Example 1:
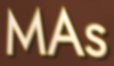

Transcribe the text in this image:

MAs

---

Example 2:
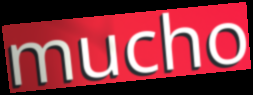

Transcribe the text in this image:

mucho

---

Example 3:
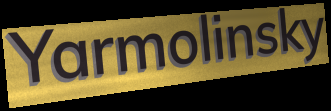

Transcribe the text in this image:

Yarmolinsky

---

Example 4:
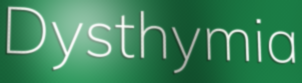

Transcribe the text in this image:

Dysthymia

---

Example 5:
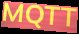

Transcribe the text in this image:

MQTT